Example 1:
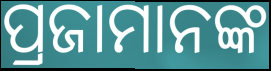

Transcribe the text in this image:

ପ୍ରଜାମାନଙ୍କ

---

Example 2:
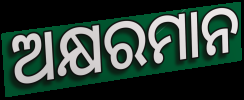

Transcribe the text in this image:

ଅକ୍ଷରମାନ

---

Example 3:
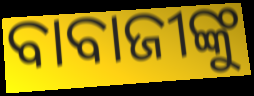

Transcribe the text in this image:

ବାବାଜୀଙ୍କୁ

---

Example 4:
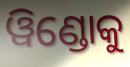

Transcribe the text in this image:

ୱିଣ୍ଡୋକୁ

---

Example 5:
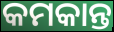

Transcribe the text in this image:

କମକାନ୍ତ